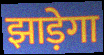
झाड़ेगा